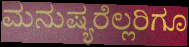
ಮನುಷ್ಯರೆಲ್ಲರಿಗೂ